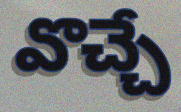
వొచ్చే